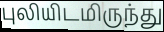
புலியிடமிருந்து